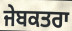
ਜੇਬਕਤਰਾ